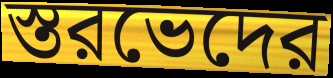
স্তরভেদের